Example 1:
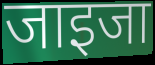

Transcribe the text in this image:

जाइजा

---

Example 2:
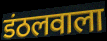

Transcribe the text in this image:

डंठलवाला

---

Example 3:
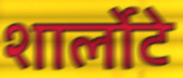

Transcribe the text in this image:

शार्लोटे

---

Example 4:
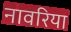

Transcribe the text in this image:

नावरिया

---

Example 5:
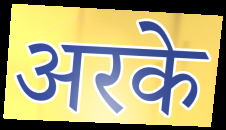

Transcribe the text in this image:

अरके